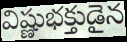
విష్ణుభక్తుడైన